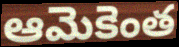
ఆమెకెంత